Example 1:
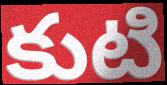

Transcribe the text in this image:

కుటి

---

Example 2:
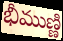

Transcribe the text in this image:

భీముణ్ణి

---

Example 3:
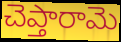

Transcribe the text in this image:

చెప్తారామె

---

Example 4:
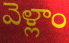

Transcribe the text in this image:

వెళ్లాం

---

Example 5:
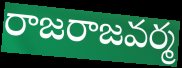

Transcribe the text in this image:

రాజరాజవర్మ